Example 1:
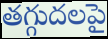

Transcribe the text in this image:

తగ్గుదలపై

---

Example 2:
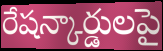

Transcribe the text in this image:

రేషన్కార్డులపై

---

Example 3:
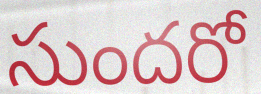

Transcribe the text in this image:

సుందరో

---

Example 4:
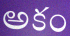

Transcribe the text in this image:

అకం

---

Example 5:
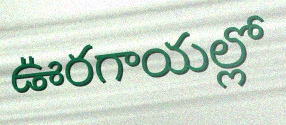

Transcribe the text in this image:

ఊరగాయల్లో